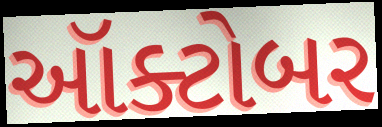
ઑક્ટોબર